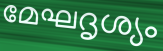
മേഘദൃശ്യം